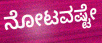
ನೋಟವಷ್ಟೇ